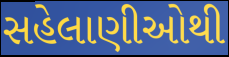
સહેલાણીઓથી